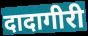
दादागीरी